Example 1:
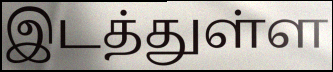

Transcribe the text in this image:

இடத்துள்ள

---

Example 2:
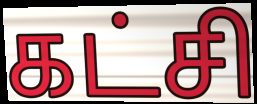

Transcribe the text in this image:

கட்சி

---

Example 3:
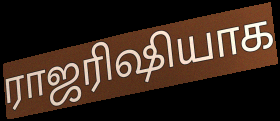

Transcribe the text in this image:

ராஜரிஷியாக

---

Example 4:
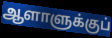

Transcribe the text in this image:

ஆளாளுக்குப்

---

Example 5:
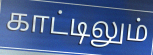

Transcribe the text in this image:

காட்டிலும்